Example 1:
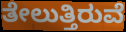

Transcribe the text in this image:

ತೇಲುತ್ತಿರುವೆ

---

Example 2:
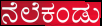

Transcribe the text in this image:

ನೆಲೆಕಂಡು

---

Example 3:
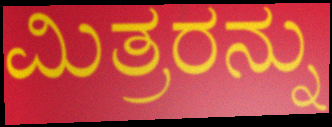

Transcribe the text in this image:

ಮಿತ್ರರನ್ನು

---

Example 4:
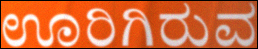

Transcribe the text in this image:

ಊರಿಗಿರುವ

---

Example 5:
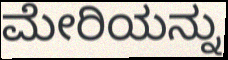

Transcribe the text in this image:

ಮೇರಿಯನ್ನು